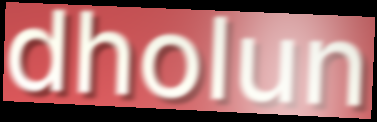
dholun